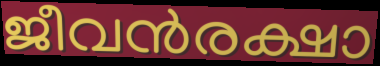
ജീവൻരക്ഷാ